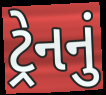
ટ્રેનનું